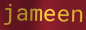
jameen